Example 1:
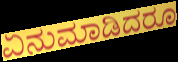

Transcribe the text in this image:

ಏನುಮಾಡಿದರೂ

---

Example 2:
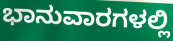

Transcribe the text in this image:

ಭಾನುವಾರಗಳಲ್ಲಿ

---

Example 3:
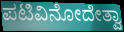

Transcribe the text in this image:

ಪಟಿವಿನೋದೇತ್ವಾ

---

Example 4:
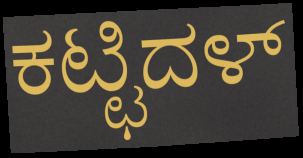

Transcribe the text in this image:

ಕಟ್ಟಿದಳ್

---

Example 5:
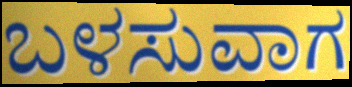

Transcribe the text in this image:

ಬಳಸುವಾಗ